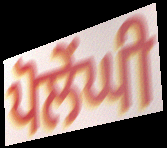
ਪੋਲੇਂਘੀ